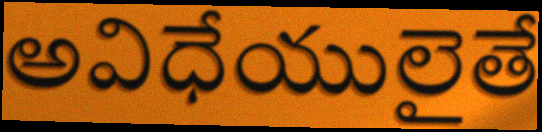
అవిధేయులైతే